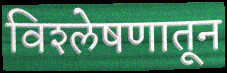
विश्लेषणातून